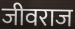
जीवराज